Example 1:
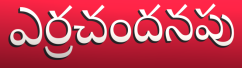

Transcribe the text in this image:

ఎర్రచందనపు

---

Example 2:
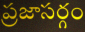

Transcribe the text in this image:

ప్రజాసర్గం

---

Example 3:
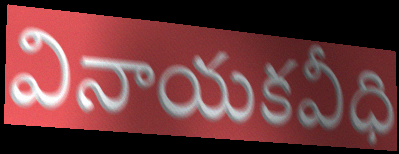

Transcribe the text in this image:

వినాయకవీధి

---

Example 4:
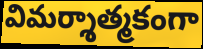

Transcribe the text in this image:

విమర్శాత్మకంగా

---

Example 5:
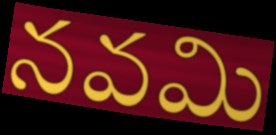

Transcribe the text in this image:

నవమి